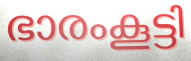
ഭാരംകൂട്ടി